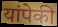
यांपेकी